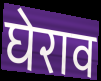
घेराव